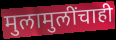
मुलामुलींचाही